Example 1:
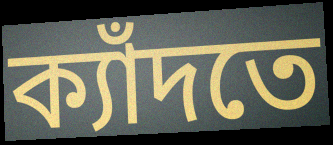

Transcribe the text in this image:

ক্যাঁদতে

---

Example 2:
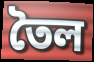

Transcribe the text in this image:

তৈল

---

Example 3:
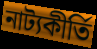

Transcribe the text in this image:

নাট্যকীর্তি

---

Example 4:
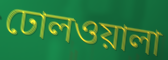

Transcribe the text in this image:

ঢোলওয়ালা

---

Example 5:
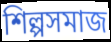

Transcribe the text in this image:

শিল্পসমাজ